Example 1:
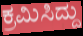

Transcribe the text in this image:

ಕ್ರಮಿಸಿದ್ದು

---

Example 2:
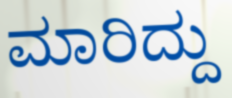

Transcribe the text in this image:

ಮಾರಿದ್ದು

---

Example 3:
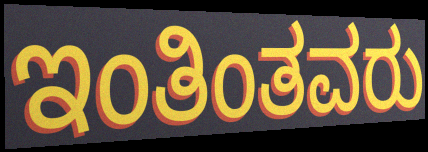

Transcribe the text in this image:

ಇಂತಿಂತವರು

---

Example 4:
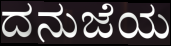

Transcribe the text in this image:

ದನುಜೆಯ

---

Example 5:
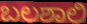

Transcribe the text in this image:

ಬಲಶಾಲಿ